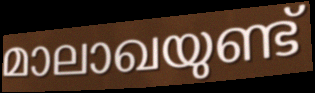
മാലാഖയുണ്ട്